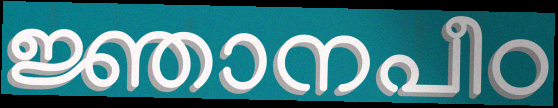
ജ്ഞാനപീഠ